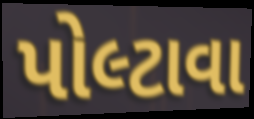
પોલ્ટાવા